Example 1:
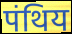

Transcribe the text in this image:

पंथिय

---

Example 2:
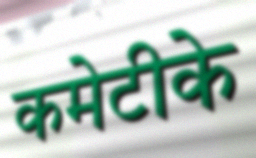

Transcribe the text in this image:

कमेटीके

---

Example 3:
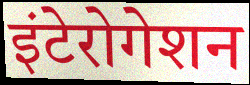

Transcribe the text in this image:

इंटेरोगेशन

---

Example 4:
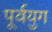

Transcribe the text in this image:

पूर्वयुग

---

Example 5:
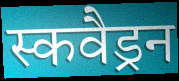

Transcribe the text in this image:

स्कवैड्रन